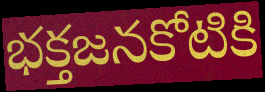
భక్తజనకోటికి